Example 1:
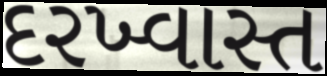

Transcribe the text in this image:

દરખ્વાસ્ત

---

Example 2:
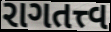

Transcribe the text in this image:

રાગતત્ત્વ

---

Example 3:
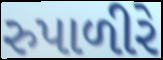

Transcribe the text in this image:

રુપાળીરે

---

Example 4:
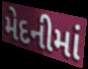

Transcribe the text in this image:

મેદનીમાં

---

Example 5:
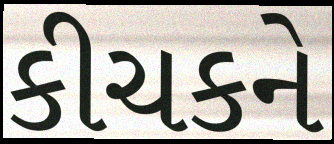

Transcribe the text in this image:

કીચકને